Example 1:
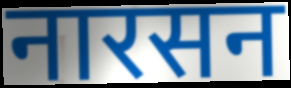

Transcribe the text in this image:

नारसन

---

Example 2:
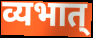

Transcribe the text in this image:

व्यभात्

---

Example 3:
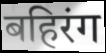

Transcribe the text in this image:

बहिरंग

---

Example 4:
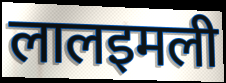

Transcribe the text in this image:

लालइमली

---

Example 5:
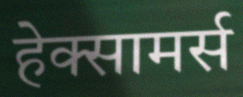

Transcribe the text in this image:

हेक्सामर्स